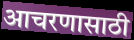
आचरणासाठी